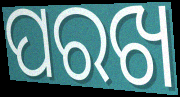
ପରଖ